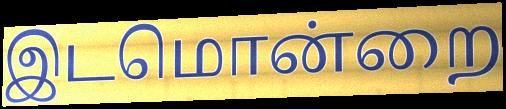
இடமொன்றை